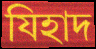
যিহাদ